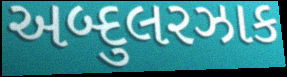
અબ્દુલરઝાક